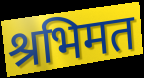
श्रभिमत